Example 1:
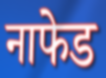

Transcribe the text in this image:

नाफेड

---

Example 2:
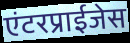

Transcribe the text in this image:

एंटरप्राईजेस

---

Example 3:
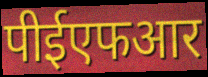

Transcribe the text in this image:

पीईएफआर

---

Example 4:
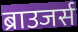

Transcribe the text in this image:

ब्राउजर्स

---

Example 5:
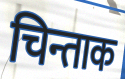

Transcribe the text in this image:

चिन्ताक